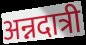
अन्नदात्री